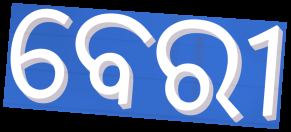
ବେରୀ